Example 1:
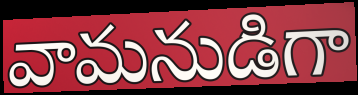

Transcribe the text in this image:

వామనుడిగా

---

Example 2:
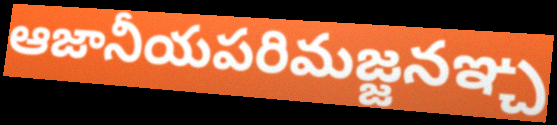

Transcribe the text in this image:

ఆజానీయపరిమజ్జనఞ్చ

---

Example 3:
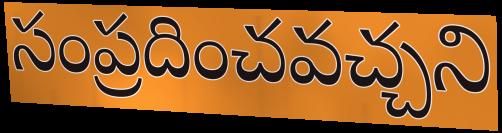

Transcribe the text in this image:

సంప్రదించవచ్చని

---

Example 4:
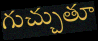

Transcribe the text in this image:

గుచ్చుతూ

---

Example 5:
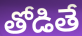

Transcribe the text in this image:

తోడితే